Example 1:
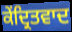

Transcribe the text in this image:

ਕੇਂਦ੍ਰਿਤਵਾਦ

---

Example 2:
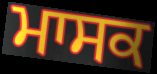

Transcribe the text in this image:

ਮਾਸਕ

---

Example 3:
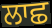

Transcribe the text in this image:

ਲਾਛ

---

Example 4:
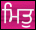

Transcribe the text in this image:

ਮਿਤੁ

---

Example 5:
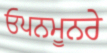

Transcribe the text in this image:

ਓਪਨਮੂਨਰੇ